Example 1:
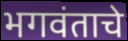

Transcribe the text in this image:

भगवंताचे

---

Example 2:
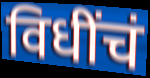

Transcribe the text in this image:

विधींचं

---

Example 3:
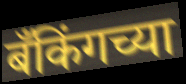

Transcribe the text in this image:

बँकिंगच्या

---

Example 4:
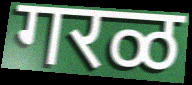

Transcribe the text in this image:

गरळ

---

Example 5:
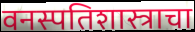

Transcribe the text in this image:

वनस्पतिशास्त्राचा